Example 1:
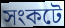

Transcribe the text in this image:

সংকটে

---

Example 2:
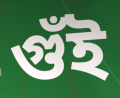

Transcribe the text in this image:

গুঁই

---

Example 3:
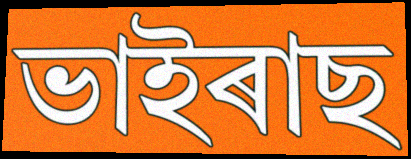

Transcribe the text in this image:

ভাইৰাছ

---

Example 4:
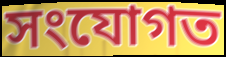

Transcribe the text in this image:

সংযোগত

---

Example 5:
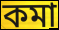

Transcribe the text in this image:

কমা